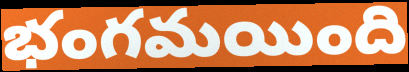
భంగమయింది